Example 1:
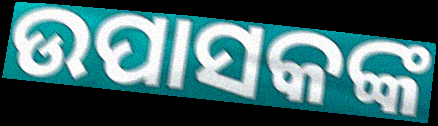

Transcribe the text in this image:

ଉପାସକଙ୍କ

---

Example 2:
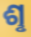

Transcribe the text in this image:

ଶୢ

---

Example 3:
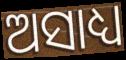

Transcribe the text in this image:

ଅସାଧ୍ୟ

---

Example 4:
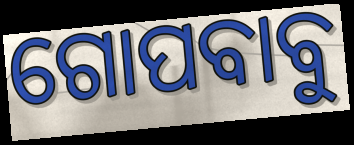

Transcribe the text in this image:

ଗୋପବାବୁ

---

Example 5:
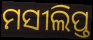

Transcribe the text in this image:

ମସୀଲିପ୍ତ